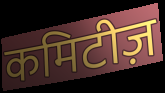
कमिटीज़